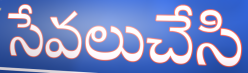
సేవలుచేసి